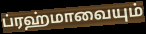
ப்ரஹ்மாவையும்